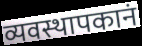
व्यवस्थापकानं